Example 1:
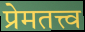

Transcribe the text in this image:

प्रेमतत्त्व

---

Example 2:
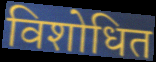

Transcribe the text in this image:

विशोधित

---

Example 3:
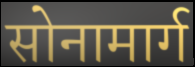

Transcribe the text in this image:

सोनामार्ग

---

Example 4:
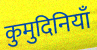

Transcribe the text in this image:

कुमुदिनियाँ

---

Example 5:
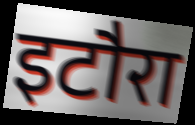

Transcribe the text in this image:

इटौरा